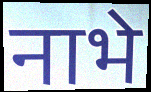
नाभे